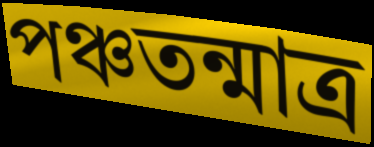
পঞ্চতন্মাত্র